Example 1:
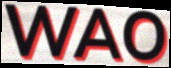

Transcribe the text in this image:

WAO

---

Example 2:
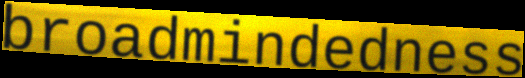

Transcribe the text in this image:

broadmindedness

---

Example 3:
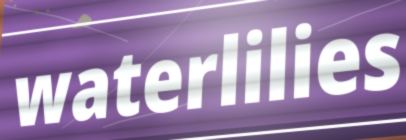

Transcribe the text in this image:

waterlilies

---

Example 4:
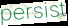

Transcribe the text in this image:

persist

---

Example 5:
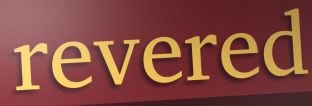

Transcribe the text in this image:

revered